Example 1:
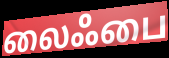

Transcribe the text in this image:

லைஃபை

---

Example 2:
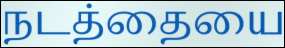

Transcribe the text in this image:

நடத்தையை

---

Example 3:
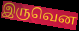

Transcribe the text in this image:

இருவென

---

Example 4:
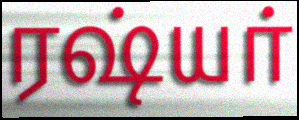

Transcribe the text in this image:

ரஷ்யர்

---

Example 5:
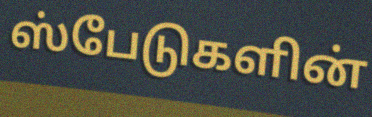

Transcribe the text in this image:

ஸ்பேடுகளின்